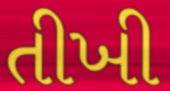
તીખી